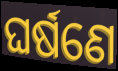
ଘର୍ଷଣେ